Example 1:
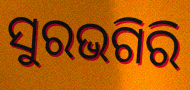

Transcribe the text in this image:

ସୁରଭଗିରି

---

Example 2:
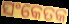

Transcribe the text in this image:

ସଂକେତକ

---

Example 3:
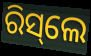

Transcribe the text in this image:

ରିସ୍‌ଲେ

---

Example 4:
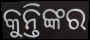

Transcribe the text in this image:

କୁନ୍ତିଙ୍କର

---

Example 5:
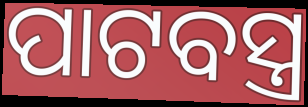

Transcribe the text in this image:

ପାଟବସ୍ତ୍ର